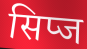
सिप्ज